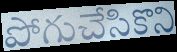
పోగుచేసికొని